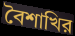
বৈশাখির